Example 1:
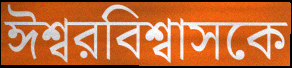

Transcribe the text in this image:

ঈশ্বরবিশ্বাসকে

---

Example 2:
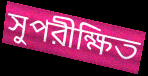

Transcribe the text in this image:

সুপরীক্ষিত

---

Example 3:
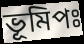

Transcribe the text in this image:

ভূমিপঃ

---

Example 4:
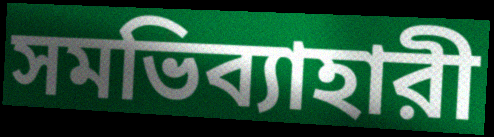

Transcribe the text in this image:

সমভিব্যাহারী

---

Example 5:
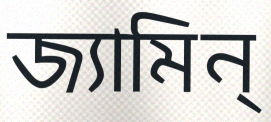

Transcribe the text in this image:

জ্যামিন্